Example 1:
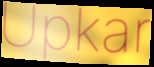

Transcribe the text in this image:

Upkar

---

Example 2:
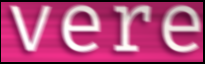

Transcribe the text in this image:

vere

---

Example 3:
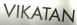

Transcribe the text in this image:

VIKATAN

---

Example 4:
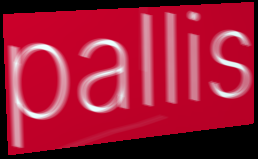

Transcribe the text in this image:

pallis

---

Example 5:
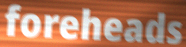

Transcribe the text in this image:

foreheads